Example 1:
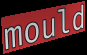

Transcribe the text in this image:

mould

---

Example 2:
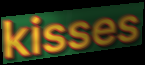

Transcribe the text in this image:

kisses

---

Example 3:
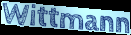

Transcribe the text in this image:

Wittmann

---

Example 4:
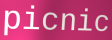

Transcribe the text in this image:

picnic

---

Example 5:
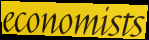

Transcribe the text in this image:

economists